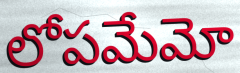
లోపమేమో